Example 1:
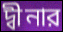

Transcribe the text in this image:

দ্বীনার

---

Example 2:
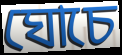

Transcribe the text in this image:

ঘোচে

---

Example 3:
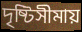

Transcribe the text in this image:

দৃষ্টিসীমায়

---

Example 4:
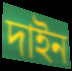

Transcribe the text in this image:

দাইন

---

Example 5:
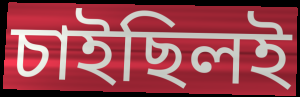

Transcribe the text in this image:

চাইছিলই